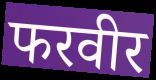
फरवीर